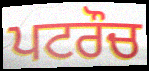
ਪਟਰੌਚ